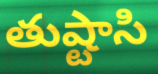
తుష్టాసి